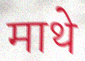
माथे